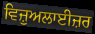
ਵਿਜ਼ੁਅਲਾਈਜ਼ਰ